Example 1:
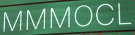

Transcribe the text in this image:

MMMOCL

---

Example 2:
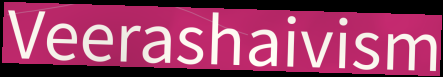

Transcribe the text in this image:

Veerashaivism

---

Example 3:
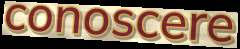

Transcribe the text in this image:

conoscere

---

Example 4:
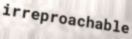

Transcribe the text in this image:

irreproachable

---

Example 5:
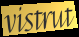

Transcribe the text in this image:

vistrut